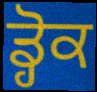
ਡ੍ਹੋਕ